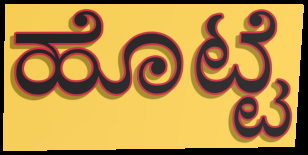
ಹೊಟ್ಟೆ